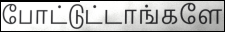
போட்டுட்டாங்களே